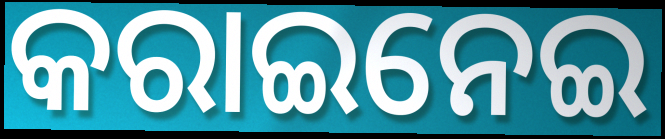
କରାଇନେଇ